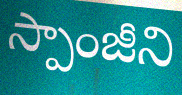
స్పాంజీని